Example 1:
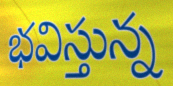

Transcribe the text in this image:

భవిస్తున్న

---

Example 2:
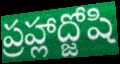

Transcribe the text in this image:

ప్రహ్లాద్జోషి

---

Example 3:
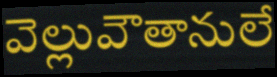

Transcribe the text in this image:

వెల్లువౌతానులే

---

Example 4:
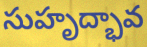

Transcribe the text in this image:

సుహృద్భావ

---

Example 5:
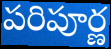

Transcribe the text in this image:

పరిపూర్ణ